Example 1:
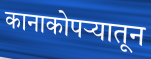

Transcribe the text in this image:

कानाकोपऱ्यातून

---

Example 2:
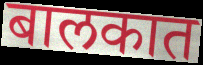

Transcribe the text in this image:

बालकात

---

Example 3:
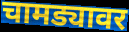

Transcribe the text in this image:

चामड्यावर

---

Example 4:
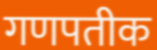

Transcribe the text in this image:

गणपतीक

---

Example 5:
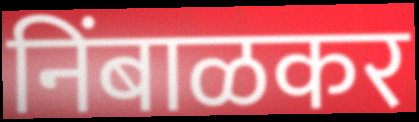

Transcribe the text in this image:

निंबाळकर